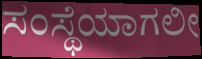
ಸಂಸ್ಥೆಯಾಗಲೀ